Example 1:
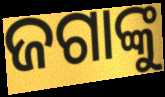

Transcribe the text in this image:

ଜଗାଙ୍କୁ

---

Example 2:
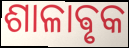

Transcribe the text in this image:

ଶାଳାଵୃକ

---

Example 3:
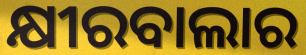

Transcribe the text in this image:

କ୍ଷୀରବାଲାର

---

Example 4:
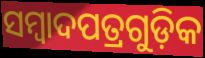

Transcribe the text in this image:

ସମ୍ୱାଦପତ୍ରଗୁଡ଼ିକ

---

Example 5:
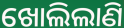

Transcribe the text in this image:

ଖୋଲିଲାଣି